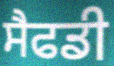
ਸੈਫਡੀ